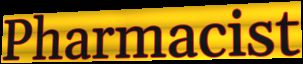
Pharmacist